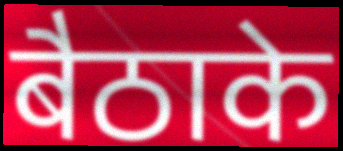
बैठाके